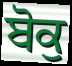
ਬੋਕੁ